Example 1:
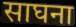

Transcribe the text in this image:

साघना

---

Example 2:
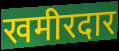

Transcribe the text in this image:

खमीरदार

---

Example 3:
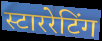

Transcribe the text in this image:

स्टाररेटिंग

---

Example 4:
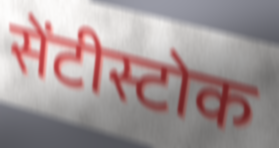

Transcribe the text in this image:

सेंटीस्टोक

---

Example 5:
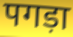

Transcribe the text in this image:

पगड़ा